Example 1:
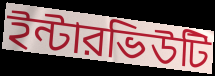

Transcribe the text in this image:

ইন্টারভিউটি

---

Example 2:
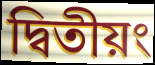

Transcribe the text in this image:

দ্বিতীয়ং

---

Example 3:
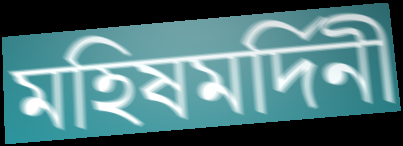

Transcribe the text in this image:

মহিষমর্দিনী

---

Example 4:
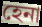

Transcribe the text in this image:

হেনা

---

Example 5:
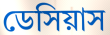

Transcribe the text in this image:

ডেসিয়াস